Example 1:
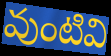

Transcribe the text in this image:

వుంటివి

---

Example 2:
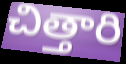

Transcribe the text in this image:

చిత్తారి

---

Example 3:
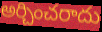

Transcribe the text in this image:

అర్చించరాదు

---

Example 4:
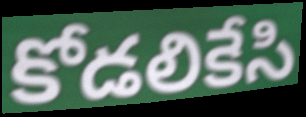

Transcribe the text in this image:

కోడలికేసి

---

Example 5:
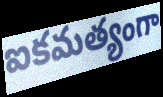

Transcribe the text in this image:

ఐకమత్యంగా